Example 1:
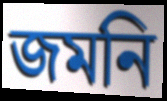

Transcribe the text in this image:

জমনি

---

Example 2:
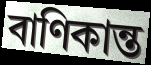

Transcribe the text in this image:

বাণিকান্ত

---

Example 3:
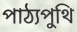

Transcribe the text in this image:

পাঠ্যপুথি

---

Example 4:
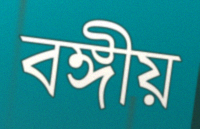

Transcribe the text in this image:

বঙ্গীয়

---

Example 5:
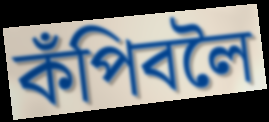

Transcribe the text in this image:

কঁপিবলৈ